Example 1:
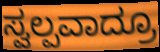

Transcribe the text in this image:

ಸ್ವಲ್ಪವಾದ್ರೂ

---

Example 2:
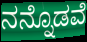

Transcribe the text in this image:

ನನ್ನೊಡವೆ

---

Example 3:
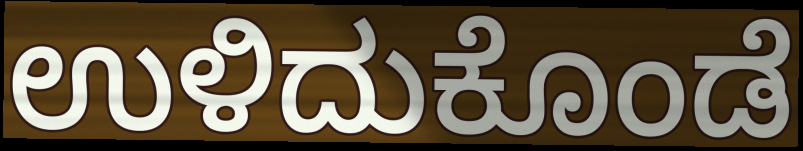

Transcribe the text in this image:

ಉಳಿದುಕೊಂಡೆ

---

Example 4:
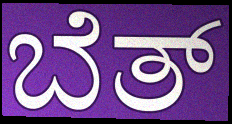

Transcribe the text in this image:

ಬೆತ್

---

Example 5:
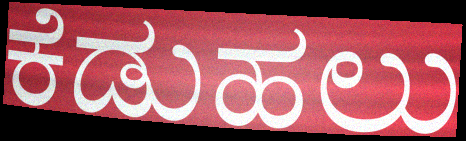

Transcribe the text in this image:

ಕೆಡುಹಲು